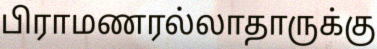
பிராமணரல்லாதாருக்கு